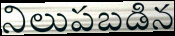
నిలుపబడిన